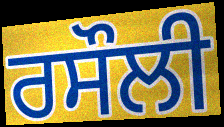
ਰਸੌਲੀ